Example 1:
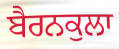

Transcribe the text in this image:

ਬੈਰਨਕੁਲਾ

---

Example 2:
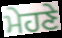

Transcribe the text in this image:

ਮੇਹਣੇ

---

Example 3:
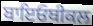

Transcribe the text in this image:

ਬਾਇਓਥੀਕਲ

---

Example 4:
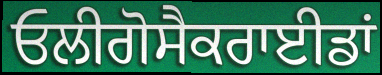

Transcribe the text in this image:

ਓਲੀਗੋਸੈਕਰਾਈਡਾਂ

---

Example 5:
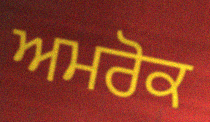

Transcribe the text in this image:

ਅਮਰੋਕ